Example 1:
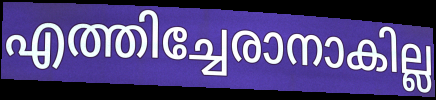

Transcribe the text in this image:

എത്തിച്ചേരാനാകില്ല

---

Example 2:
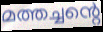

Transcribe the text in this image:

മത്തച്ചന്റെ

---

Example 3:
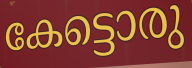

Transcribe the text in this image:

കേട്ടൊരു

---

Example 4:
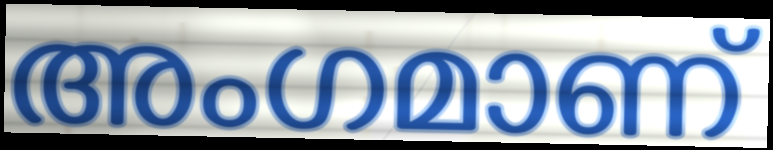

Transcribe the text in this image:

അംഗമാണ്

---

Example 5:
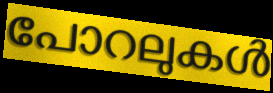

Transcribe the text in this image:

പോറലുകൾ